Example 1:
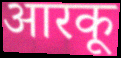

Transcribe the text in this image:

आरकू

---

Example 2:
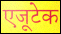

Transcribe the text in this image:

एजूटेक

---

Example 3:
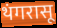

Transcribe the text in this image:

थंगरासू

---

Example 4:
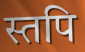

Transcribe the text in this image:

स्‍तपि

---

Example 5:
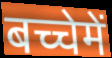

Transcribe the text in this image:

बच्चेमें